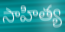
సాహిత్య